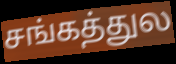
சங்கத்துல